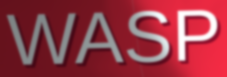
WASP